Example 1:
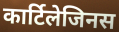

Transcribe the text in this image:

कार्टिलेजिनस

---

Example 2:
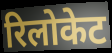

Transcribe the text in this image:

रिलोकेट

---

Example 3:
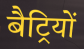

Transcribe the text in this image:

बैट्रियों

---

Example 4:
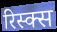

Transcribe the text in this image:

रिस्क्स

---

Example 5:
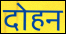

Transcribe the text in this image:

दोहन